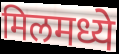
मिलमध्ये